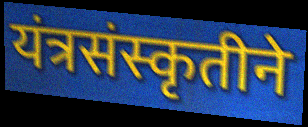
यंत्रसंस्कृतीने